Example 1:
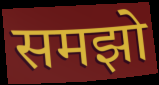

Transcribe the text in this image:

समझो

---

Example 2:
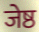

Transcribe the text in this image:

जेष्ठ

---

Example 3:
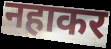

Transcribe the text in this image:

नहाकर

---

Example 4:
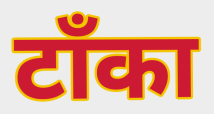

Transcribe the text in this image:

टाँका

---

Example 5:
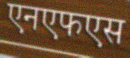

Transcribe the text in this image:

एनएफएस